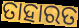
ତାହାରତ